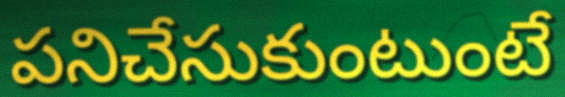
పనిచేసుకుంటుంటే